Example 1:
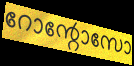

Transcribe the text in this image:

റോന്റോസോ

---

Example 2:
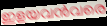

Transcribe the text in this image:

ഇളയവൻവരെ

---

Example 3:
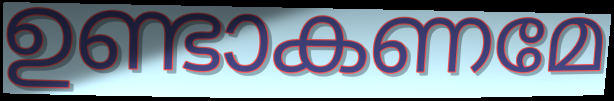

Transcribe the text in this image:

ഉണ്ടാകണമേ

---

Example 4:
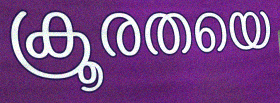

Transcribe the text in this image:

ക്രൂരതയെ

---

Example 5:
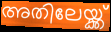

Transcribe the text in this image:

അതിലേയ്ക്ക്